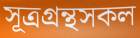
সূত্রগ্রন্থসকল